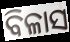
ବିଳାସ